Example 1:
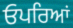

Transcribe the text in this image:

ਓਪਰਿਆਂ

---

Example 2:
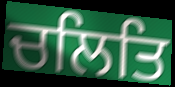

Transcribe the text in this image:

ਚਲਿਤਿ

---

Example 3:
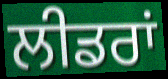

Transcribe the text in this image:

ਲੀਡਰਾਂ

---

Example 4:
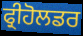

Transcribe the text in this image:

ਫ੍ਰੀਹੋਲਡਰ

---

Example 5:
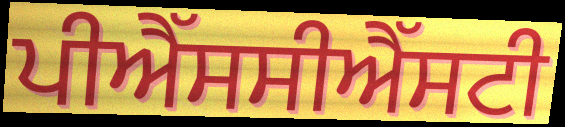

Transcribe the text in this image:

ਪੀਐੱਸਸੀਐੱਸਟੀ